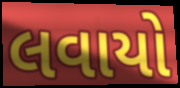
લવાયો